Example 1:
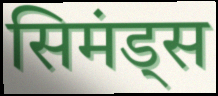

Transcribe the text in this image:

सिमंड्स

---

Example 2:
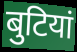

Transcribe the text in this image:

बुटियां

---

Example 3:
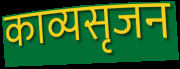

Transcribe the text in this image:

काव्यसृजन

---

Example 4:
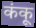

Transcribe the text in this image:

कंकू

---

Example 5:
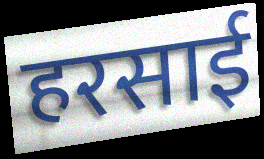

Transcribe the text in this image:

हरसाई